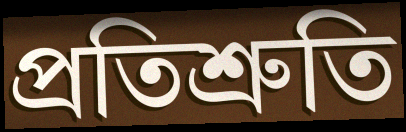
প্রতিশ্রুতি